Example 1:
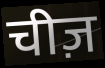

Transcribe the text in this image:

चीज़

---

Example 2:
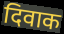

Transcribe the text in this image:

दिवाक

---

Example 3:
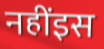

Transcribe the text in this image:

नहींइस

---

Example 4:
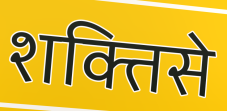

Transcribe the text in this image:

शक्तिसे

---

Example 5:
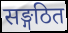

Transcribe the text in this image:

सङ्गठित